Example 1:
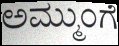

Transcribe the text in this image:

ಅಮ್ಮುಂಗೆ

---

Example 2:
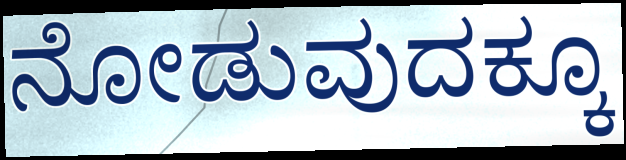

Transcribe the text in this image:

ನೋಡುವುದಕ್ಕೂ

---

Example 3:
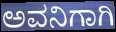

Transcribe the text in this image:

ಅವನಿಗಾಗಿ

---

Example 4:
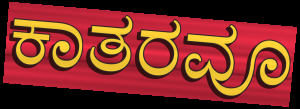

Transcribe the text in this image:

ಕಾತರವೂ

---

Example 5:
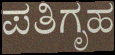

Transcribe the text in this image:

ಪತಿಗೃಹ